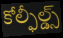
కోల్ఫీల్డ్స్